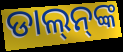
ଡାଲ୍‌ନ୍‌ଙ୍କ